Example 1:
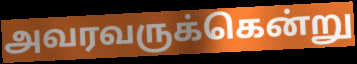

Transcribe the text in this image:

அவரவருக்கென்று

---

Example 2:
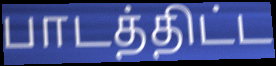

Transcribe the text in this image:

பாடத்திட்ட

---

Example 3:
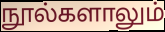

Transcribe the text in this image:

நூல்களாலும்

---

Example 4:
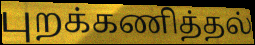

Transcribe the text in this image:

புறக்கணித்தல்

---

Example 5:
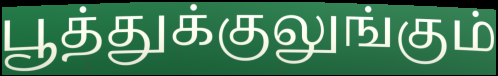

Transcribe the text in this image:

பூத்துக்குலுங்கும்